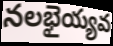
నలభైయ్యవ